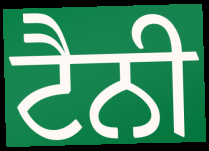
ਟੈਨੀ